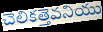
చెలికత్తెవనియు